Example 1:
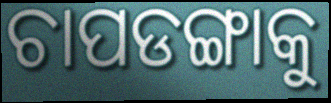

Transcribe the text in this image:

ଚାପଡଙ୍ଗାକୁ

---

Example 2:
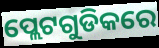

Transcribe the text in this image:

ପ୍ଲେଟଗୁଡିକରେ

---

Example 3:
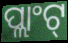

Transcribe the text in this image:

ପ୍ଲାଂଟ୍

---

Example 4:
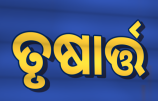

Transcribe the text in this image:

ତୃଷାର୍ତ୍ତ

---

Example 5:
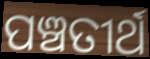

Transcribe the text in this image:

ପଞ୍ଚତୀର୍ଥ